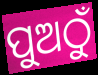
ପୁଅଠୁଁ